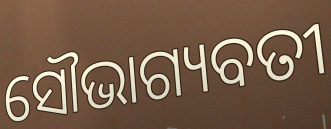
ସୌଭାଗ୍ୟବତୀ